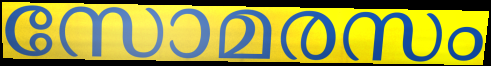
സോമരസം